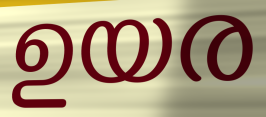
ഉയര